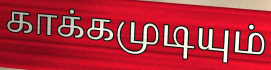
காக்கமுடியும்